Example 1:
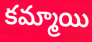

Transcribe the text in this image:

కమ్మాయి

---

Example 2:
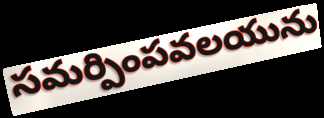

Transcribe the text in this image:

సమర్పింపవలయును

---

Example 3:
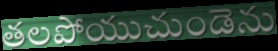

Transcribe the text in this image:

తలపోయుచుండెను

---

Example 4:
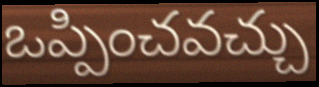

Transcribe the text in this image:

ఒప్పించవచ్చు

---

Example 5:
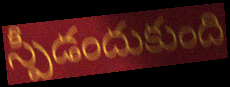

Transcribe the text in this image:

స్పీడందుకుంది